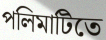
পলিমাটিতে